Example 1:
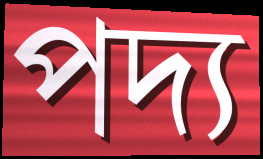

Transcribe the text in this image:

পদ্য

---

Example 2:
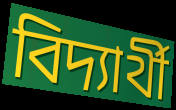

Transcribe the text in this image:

বিদ্যার্থী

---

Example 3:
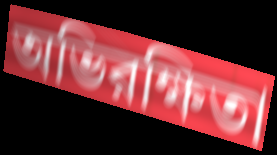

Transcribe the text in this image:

অভিরক্ষিতা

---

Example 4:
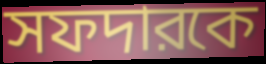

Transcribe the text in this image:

সফদারকে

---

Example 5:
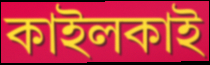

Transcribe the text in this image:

কাইলকাই